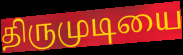
திருமுடியை